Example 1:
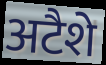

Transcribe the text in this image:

अटैशे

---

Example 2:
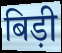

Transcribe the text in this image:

बिड़ी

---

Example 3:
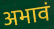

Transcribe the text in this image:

अभावं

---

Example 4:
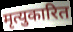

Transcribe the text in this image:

मृत्युकारित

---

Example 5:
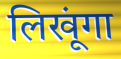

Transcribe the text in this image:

लिखूंगा